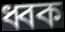
ধ্বক